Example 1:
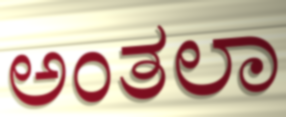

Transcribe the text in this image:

ಅಂತಲಾ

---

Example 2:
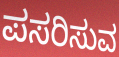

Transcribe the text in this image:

ಪಸರಿಸುವ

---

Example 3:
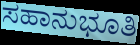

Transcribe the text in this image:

ಸಹಾನುಭೂತಿ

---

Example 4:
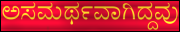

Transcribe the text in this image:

ಅಸಮರ್ಥವಾಗಿದ್ದವು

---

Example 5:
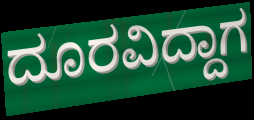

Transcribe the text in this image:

ದೂರವಿದ್ದಾಗ